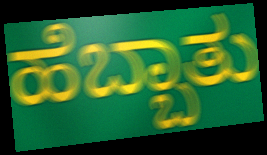
ಹೆಬ್ಬಾತು